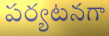
పర్యటనగా